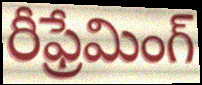
రీఫ్రేమింగ్